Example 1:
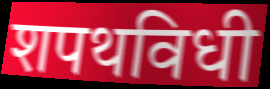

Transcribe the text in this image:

शपथविधी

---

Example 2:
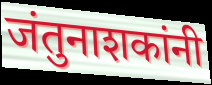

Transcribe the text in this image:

जंतुनाशकांनी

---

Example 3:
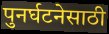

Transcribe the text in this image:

पुनर्घटनेसाठी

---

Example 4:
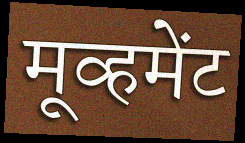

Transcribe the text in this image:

मूव्हमेंट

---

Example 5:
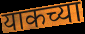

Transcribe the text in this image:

याकच्या